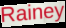
Rainey